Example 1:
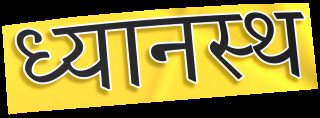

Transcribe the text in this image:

ध्यानस्थ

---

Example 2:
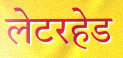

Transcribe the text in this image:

लेटरहेड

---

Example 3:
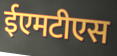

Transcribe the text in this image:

ईएमटीएस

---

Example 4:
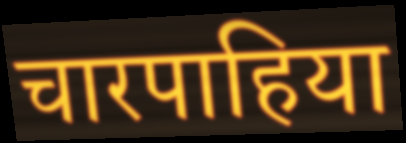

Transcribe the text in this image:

चारपाहिया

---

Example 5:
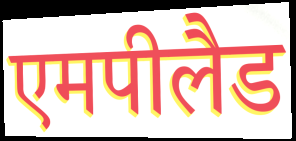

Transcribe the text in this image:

एमपीलैड